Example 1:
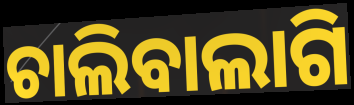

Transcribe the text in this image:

ଚାଲିବାଲାଗି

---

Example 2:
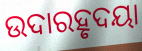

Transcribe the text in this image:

ଉଦାରହୃଦୟା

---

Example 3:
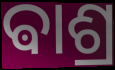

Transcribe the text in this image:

ଵାଶ୍ର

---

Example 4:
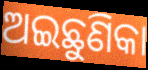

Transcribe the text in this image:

ଅଇଛୁଣିକା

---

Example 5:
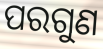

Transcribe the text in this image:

ପରଗୁଣ